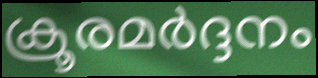
ക്രൂരമർദ്ദനം